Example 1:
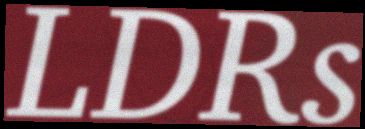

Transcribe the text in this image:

LDRs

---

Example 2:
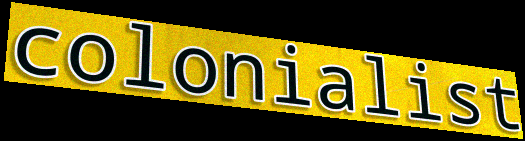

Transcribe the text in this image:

colonialist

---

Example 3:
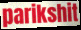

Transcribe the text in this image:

parikshit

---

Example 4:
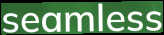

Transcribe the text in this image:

seamless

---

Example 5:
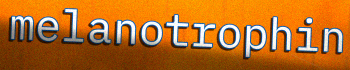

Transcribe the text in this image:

melanotrophin